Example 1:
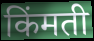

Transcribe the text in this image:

किंमती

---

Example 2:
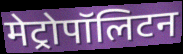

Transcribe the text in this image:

मेट्रोपॉलिटन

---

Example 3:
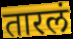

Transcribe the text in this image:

तारलं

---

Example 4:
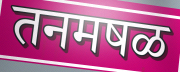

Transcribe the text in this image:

तनमषळ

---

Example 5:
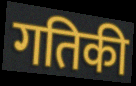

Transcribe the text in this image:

गतिकी